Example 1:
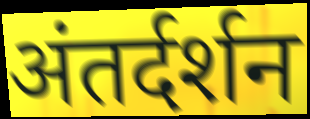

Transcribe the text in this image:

अंतर्दर्शन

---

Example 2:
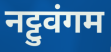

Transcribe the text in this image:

नट्टुवंगम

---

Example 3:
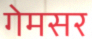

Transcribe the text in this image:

गेमसर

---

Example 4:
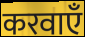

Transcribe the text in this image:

करवाएँ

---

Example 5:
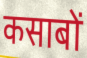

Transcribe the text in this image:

कसाबों